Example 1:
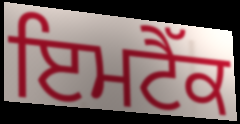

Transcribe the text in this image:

ਇਮਟੈੱਕ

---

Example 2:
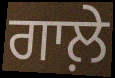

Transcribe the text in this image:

ਗਾਲ਼ੇ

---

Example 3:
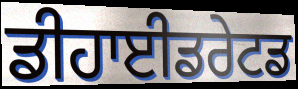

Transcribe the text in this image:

ਡੀਹਾਈਡਰੇਟਡ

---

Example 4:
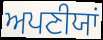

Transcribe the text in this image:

ਅਪਣੀਯਾਂ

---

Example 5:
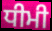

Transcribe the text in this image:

ਧੀਮੀ